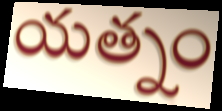
యత్నం